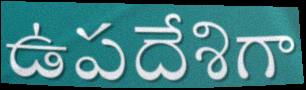
ఉపదేశిగా